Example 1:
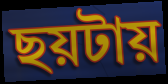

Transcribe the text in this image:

ছয়টায়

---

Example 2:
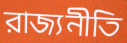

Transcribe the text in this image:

রাজ্যনীতি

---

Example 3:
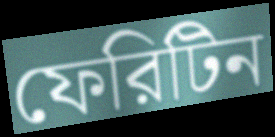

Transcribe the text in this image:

ফেরিটিন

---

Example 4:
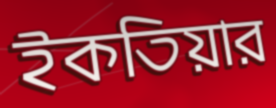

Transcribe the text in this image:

ইকতিয়ার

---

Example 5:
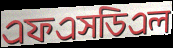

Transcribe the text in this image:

এফএসডিএল